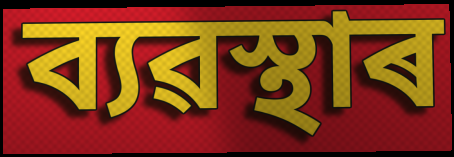
ব্যৱস্থাৰ